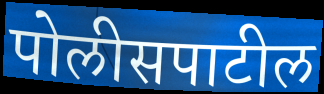
पोलीसपाटील